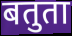
बतुता